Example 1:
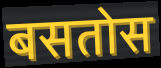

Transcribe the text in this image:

बसतोस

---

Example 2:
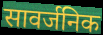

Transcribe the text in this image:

सावर्जनिक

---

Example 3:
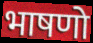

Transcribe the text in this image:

भाषणो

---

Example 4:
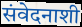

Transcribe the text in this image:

संवेदनाशी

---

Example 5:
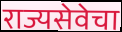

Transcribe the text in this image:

राज्यसेवेचा